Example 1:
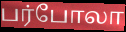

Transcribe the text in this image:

பர்போலா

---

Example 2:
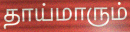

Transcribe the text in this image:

தாய்மாரும்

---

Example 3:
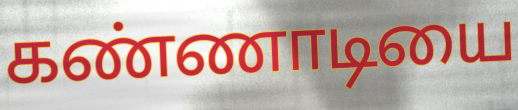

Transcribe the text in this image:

கண்ணாடியை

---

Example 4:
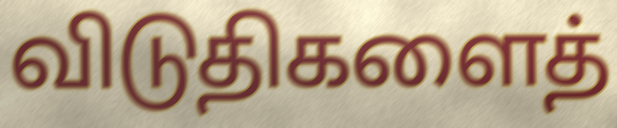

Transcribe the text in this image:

விடுதிகளைத்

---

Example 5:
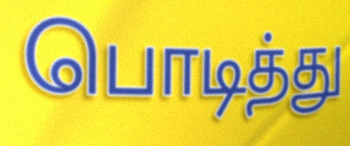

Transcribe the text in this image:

பொடித்து